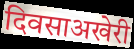
दिवसाअखेरी